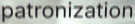
patronization